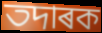
তদাৰক